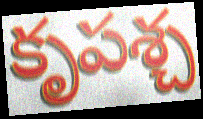
కృపశ్చ